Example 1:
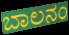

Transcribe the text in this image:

ಬಾಲನಂ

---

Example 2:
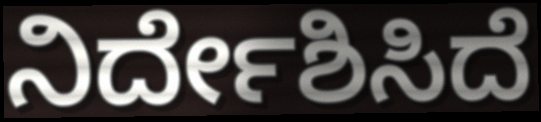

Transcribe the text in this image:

ನಿರ್ದೇಶಿಸಿದೆ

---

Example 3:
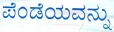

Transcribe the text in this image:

ಪೆಂಡೆಯವನ್ನು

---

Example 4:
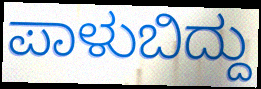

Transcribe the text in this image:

ಪಾಳುಬಿದ್ದು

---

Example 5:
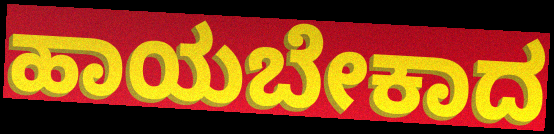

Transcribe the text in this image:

ಹಾಯಬೇಕಾದ